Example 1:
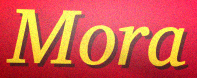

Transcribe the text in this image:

Mora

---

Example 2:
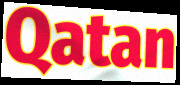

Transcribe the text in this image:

Qatan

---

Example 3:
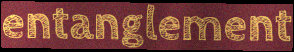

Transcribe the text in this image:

entanglement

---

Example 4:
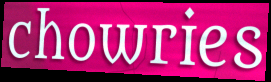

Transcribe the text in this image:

chowries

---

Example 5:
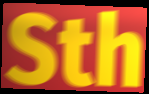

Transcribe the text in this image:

Sth